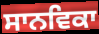
ਸਾਨਵਿਕਾ